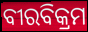
ବୀରବିକ୍ରମ